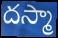
దస్మా